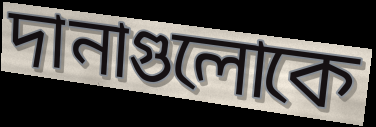
দানাগুলোকে